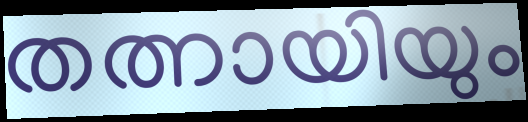
തത്നായിയും